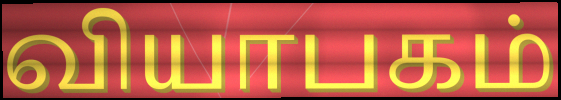
வியாபகம்